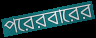
পরেরবারের